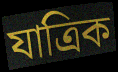
যাত্ৰিক